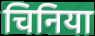
चिनिया